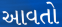
આવતો